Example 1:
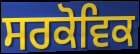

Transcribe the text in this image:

ਸਰਕੋਵਿਕ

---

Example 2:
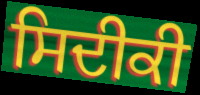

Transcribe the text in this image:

ਸਿਦੀਕੀ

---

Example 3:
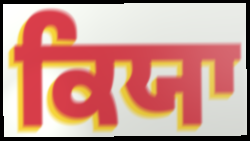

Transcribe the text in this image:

ਕਿਯਾ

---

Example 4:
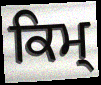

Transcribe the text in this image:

ਕਿਮ੍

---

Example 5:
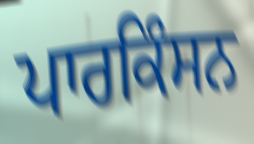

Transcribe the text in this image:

ਪਾਰਕਿੰਸਨ